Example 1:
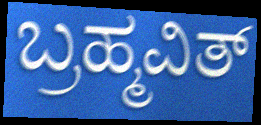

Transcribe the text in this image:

ಬ್ರಹ್ಮವಿತ್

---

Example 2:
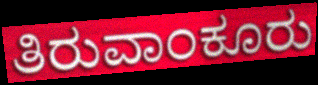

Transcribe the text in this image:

ತಿರುವಾಂಕೂರು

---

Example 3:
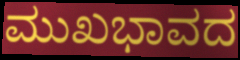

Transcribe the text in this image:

ಮುಖಭಾವದ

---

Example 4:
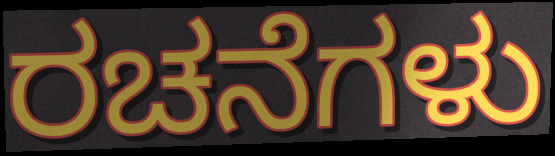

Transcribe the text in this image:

ರಚನೆಗಳು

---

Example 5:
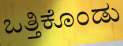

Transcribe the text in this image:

ಒತ್ತಿಕೊಂಡು